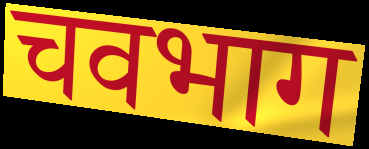
चवभाग